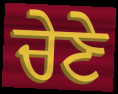
ਚੇਣੇ